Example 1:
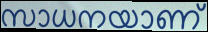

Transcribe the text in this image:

സാധനയാണ്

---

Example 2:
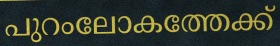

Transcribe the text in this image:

പുറംലോകത്തേക്ക്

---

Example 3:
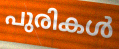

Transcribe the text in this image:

പുരികൾ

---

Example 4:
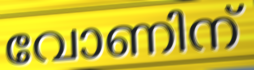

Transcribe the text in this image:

വോണിന്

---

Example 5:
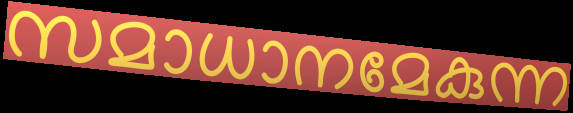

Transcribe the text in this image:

സമാധാനമേകുന്ന